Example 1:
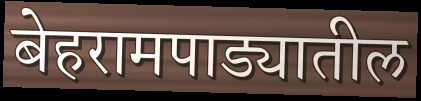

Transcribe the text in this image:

बेहरामपाड्यातील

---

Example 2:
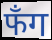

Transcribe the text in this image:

फँग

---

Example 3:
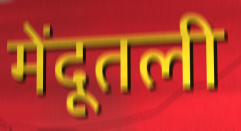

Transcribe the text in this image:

मेंदूतली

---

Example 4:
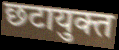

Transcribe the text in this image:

छटायुक्त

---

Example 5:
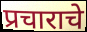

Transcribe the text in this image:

प्रचाराचे